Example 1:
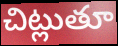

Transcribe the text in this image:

చిట్లుతూ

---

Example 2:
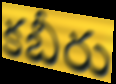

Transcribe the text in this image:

కబీరు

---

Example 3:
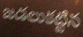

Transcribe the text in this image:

జడలుకట్టిన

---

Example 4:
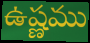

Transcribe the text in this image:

ఉష్ణము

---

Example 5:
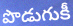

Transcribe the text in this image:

పొడుగుకీ